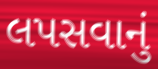
લપસવાનું